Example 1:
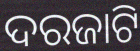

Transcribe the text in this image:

ଦରଜାଟି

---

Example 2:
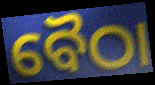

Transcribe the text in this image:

ବୈଠା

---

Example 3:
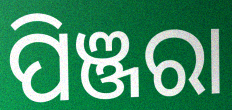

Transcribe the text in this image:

ପିଞ୍ଜରା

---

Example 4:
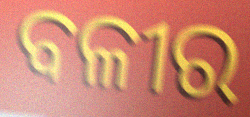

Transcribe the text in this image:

ବଳୀର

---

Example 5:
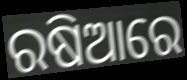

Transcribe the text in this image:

ରଷିଆରେ